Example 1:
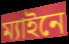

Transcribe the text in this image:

ম্যাইনে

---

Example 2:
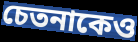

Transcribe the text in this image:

চেতনাকেও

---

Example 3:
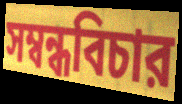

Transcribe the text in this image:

সম্বন্ধবিচার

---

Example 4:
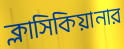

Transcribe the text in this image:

ক্লাসিকিয়ানার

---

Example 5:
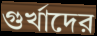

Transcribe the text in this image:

গুর্খাদের